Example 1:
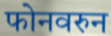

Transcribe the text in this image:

फोनवरुन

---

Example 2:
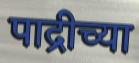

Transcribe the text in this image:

पाद्रीच्या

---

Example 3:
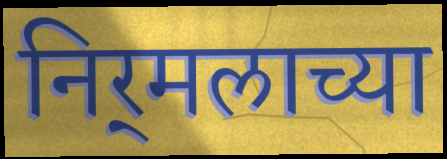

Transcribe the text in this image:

निर्मलाच्या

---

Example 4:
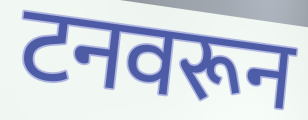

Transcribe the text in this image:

टनवरून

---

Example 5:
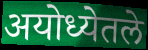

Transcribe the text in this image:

अयोध्येतले